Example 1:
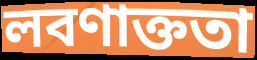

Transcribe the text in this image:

লবণাক্ততা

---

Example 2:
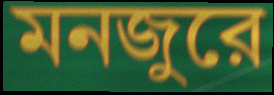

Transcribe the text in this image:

মনজুরে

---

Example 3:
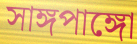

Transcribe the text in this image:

সাঙ্গপাঙ্গো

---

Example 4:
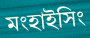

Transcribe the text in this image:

মংহাইসিং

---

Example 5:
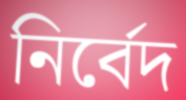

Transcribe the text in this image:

নির্বেদ